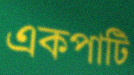
একপাটি